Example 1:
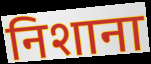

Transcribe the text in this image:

निशाना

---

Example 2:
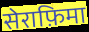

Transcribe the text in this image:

सेराफ़िमा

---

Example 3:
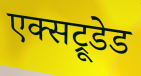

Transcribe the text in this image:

एक्सट्रूडेड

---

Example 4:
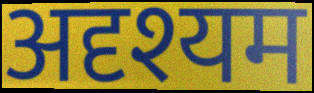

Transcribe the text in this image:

अदृश्यम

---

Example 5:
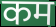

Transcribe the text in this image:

कम